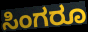
ಸಿಂಗರೂ